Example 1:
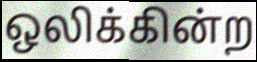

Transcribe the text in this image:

ஒலிக்கின்ற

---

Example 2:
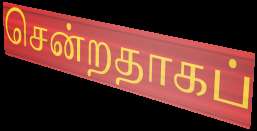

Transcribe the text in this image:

சென்றதாகப்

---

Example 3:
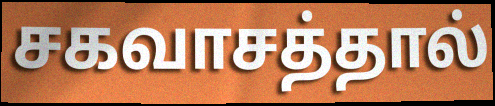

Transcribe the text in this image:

சகவாசத்தால்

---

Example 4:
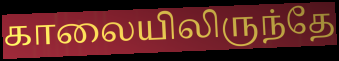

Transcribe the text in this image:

காலையிலிருந்தே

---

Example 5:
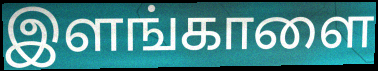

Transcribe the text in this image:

இளங்காளை